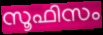
സൂഫിസം